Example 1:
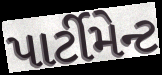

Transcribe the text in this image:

પાર્ટીમેન્ટ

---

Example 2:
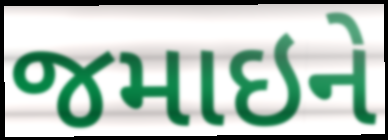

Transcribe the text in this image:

જમાઇને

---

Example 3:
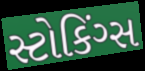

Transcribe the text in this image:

સ્ટોકિંગ્સ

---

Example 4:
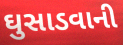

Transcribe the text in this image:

ઘુસાડવાની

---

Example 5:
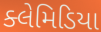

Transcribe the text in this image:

ક્લેમિડિયા